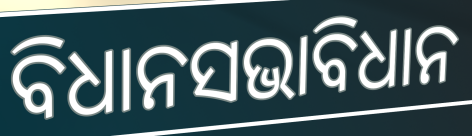
ବିଧାନସଭାବିଧାନ